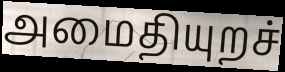
அமைதியுறச்